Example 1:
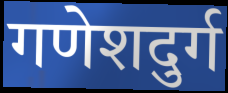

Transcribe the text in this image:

गणेशदुर्ग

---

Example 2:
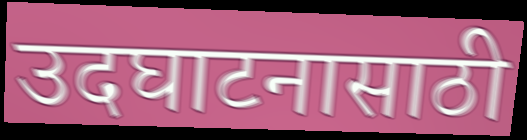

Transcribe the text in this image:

उदघाटनासाठी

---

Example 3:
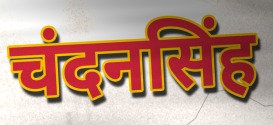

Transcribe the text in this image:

चंदनसिंह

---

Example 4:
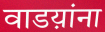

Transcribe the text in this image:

वाडय़ांना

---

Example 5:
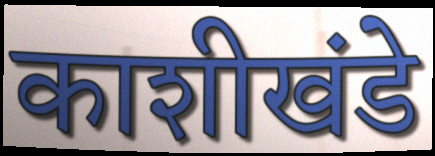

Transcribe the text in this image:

काशीखंडे